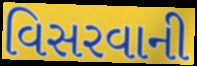
વિસરવાની